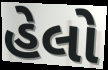
હેલો